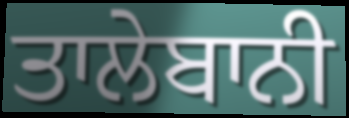
ਤਾਲੇਬਾਨੀ